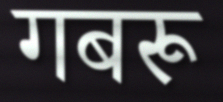
गबरू